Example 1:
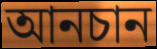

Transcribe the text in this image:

আনচান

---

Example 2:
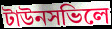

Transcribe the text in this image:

টাউনসভিলে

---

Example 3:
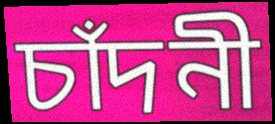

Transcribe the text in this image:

চাঁদনী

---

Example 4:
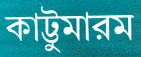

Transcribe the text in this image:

কাট্টুমারম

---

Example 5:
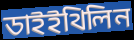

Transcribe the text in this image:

ডাইইথিলিন